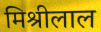
मिश्रीलाल